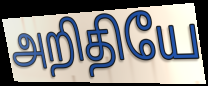
அறிதியே